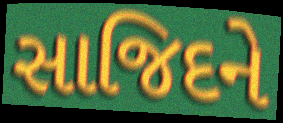
સાજિદને